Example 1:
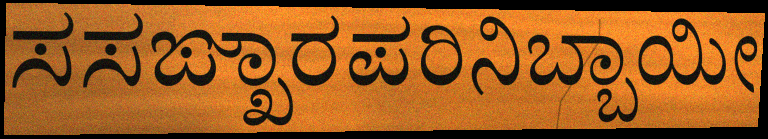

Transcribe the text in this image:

ಸಸಙ್ಖಾರಪರಿನಿಬ್ಬಾಯೀ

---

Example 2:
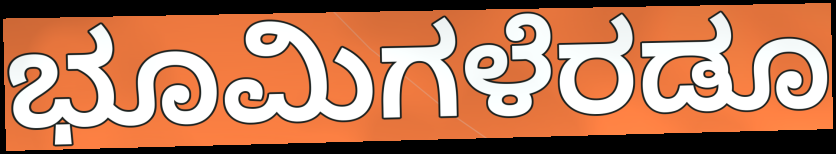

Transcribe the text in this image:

ಭೂಮಿಗಳೆರಡೂ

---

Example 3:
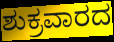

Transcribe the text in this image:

ಶುಕ್ರವಾರದ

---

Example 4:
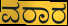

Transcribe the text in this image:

ವರಾರ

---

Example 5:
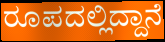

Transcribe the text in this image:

ರೂಪದಲ್ಲಿದ್ದಾನೆ